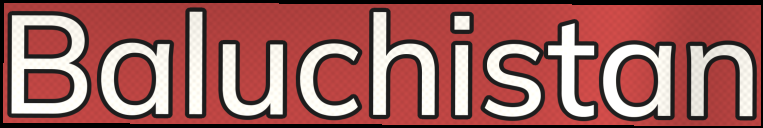
Baluchistan